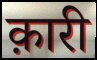
क़ारी